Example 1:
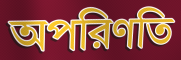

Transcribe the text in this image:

অপরিণতি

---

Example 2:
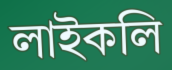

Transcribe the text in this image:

লাইকলি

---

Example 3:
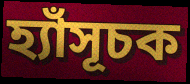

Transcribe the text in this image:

হ্যাঁসূচক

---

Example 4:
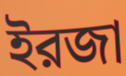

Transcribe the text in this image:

ইরজা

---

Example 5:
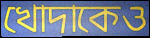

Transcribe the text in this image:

খোদাকেও